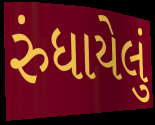
રુંધાયેલું